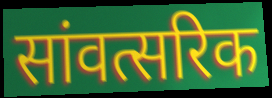
सांवत्सरिक